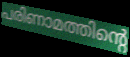
പരിണാമത്തിന്റെ